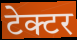
टेक्टर